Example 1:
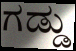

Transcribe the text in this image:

ಗಡ್ಡು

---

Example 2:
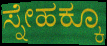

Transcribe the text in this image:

ಸ್ನೇಹಕ್ಕೂ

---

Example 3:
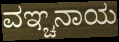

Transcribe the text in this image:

ವಞ್ಚನಾಯ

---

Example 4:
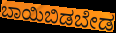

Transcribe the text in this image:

ಬಾಯಿಬಿಡಬೇಡ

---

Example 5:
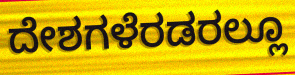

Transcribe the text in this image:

ದೇಶಗಳೆರಡರಲ್ಲೂ